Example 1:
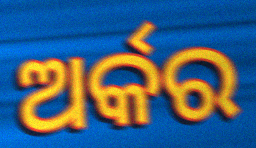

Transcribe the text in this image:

ଅର୍କର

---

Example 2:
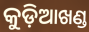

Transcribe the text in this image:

କୁଡ଼ିଆଖଣ୍ଡ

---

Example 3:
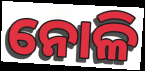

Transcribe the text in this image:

ନୋଳି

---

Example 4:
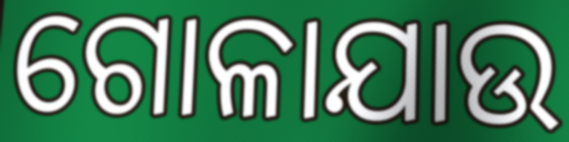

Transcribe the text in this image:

ଗୋଳାଯାଉ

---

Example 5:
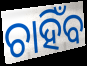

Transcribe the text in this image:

ଚାହିଁବ